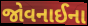
જોવનાઈના